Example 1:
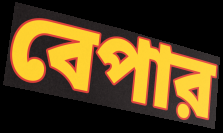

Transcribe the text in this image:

বেপার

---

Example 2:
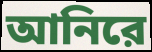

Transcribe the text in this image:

আনিরে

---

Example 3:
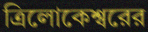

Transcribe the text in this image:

ত্রিলোকেশ্বরের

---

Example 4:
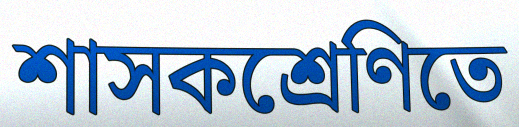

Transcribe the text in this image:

শাসকশ্রেণিতে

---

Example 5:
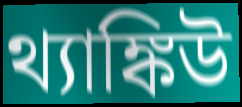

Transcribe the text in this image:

থ্যাঙ্কিউ